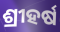
ଶ୍ରୀହର୍ଷ